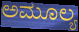
ಅಮೂಲ್ಯ